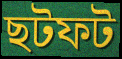
ছটফট